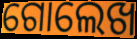
ଗୋଲେଖ